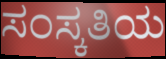
ಸಂಸ್ಕತಿಯ